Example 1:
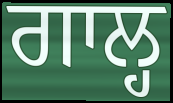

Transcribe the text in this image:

ਗਾਲ੍ਹ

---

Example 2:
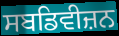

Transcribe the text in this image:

ਸਬਡਿਵੀਜ਼ਨ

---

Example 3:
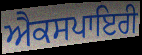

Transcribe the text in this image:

ਐਕਸਪਾਇਰੀ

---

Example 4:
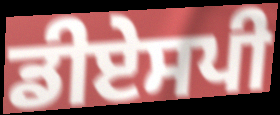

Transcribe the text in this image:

ਡੀਏਸਪੀ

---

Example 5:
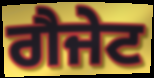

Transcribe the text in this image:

ਗੈਜੇਟ